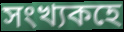
সংখ্যকহে